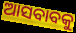
ଆସବାବକୁ